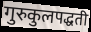
गुरुकुलपद्धती